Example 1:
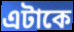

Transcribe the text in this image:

এটাকে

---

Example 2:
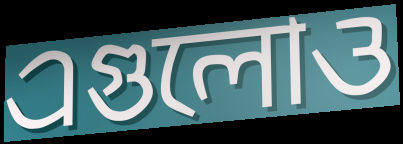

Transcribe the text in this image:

এগুলোও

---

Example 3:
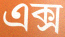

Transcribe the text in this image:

এক্স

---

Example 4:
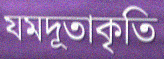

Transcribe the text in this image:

যমদূতাকৃতি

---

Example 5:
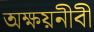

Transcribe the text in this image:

অক্ষয়নীবী